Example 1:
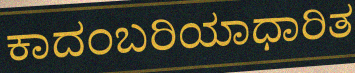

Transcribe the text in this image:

ಕಾದಂಬರಿಯಾಧಾರಿತ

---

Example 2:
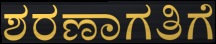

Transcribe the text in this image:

ಶರಣಾಗತಿಗೆ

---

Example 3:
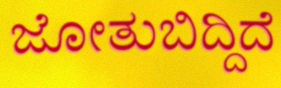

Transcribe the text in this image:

ಜೋತುಬಿದ್ದಿದೆ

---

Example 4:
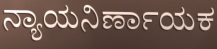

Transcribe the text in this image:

ನ್ಯಾಯನಿರ್ಣಾಯಕ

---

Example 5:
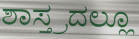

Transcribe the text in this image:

ಶಾಸ್ತ್ರದಲ್ಲೂ